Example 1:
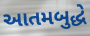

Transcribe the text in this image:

આતમબુદ્ધે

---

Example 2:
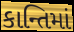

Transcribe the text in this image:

કાન્તિમાં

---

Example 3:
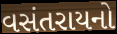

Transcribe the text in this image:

વસંતરાયનો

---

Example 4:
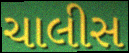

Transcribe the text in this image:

ચાલીસ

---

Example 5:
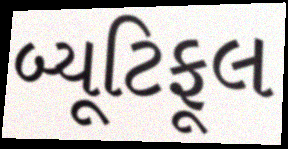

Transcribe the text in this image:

બ્યૂટિફૂલ